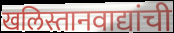
खलिस्तानवाद्यांची